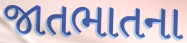
જાતભાતના